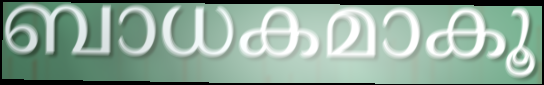
ബാധകമാകൂ